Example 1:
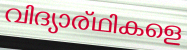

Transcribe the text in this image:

വിദ്യാര്ഥികളെ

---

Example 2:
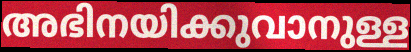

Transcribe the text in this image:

അഭിനയിക്കുവാനുള്ള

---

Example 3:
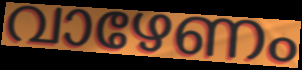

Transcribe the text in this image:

വാഴേണം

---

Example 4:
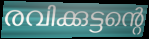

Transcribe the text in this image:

രവിക്കുട്ടന്റെ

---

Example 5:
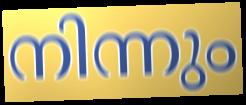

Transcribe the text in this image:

നിന്നും